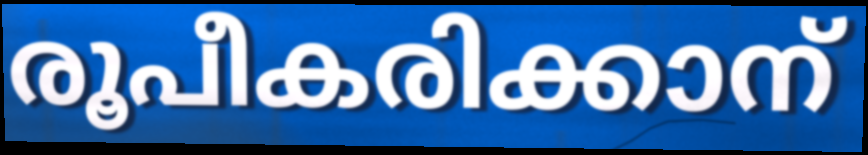
രൂപീകരിക്കാന്